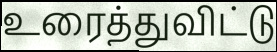
உரைத்துவிட்டு